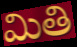
మితి